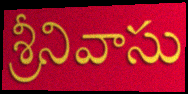
శ్రీనివాసు